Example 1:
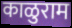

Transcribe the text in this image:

काळुराम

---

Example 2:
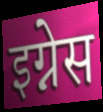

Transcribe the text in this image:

इग्नेस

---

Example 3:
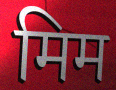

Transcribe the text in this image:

मिम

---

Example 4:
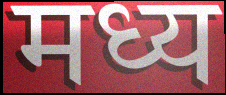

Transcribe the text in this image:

मध्य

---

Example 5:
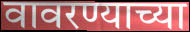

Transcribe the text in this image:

वावरण्याच्या